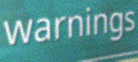
warnings